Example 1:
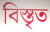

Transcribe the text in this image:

বিস্তৃত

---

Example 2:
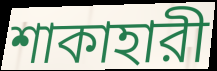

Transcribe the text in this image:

শাকাহারী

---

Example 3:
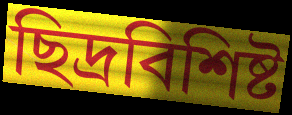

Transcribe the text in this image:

ছিদ্রবিশিষ্ট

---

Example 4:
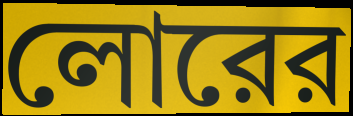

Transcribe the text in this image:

লোরের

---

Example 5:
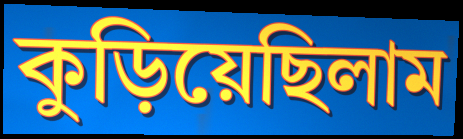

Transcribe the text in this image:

কুড়িয়েছিলাম